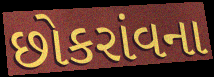
છોકરાંવના